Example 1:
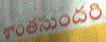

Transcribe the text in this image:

శాంతసుందరి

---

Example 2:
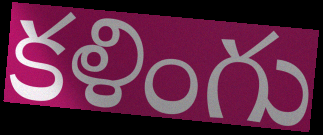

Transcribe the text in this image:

కళింగు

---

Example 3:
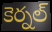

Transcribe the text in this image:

కెర్నల్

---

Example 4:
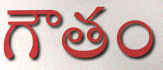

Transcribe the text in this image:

గౌతం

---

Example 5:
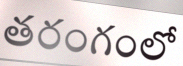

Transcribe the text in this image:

తరంగంలో